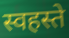
स्वहस्ते